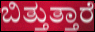
ಬಿತ್ತುತ್ತಾರೆ